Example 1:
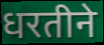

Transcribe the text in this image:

धरतीने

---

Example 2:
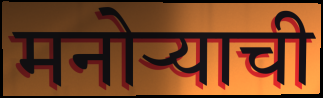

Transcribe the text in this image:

मनोऱ्याची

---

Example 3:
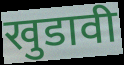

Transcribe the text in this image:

खुडावी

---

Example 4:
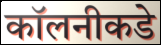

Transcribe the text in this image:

कॉलनीकडे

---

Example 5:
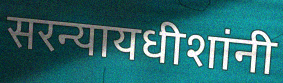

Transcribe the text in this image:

सरन्यायधीशांनी